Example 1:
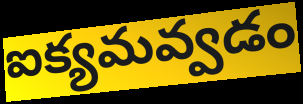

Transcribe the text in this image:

ఐక్యమవ్వడం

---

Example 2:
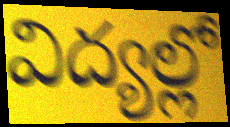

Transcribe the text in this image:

విద్యల్లో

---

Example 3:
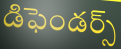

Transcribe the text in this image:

డిఫెండర్స్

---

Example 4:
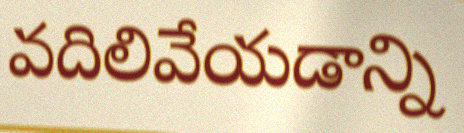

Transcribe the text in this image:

వదిలివేయడాన్ని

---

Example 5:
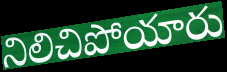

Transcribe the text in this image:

నిలిచిపోయారు